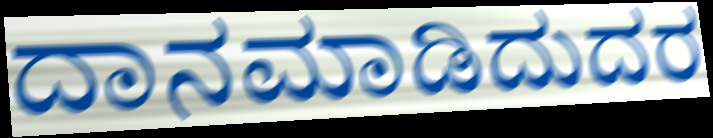
ದಾನಮಾಡಿದುದರ